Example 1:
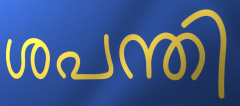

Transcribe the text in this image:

ശപന്തി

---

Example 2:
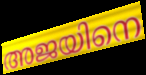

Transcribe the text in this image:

അജയിനെ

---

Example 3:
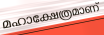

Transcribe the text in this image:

മഹാക്ഷേത്രമാണ്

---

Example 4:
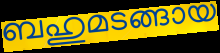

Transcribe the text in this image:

ബഹുമടങ്ങായ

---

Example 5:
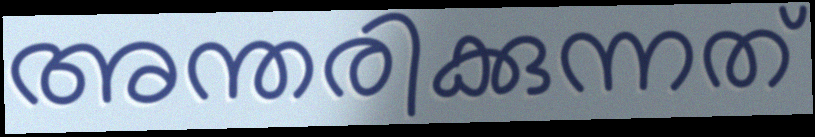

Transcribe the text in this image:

അന്തരിക്കുന്നത്